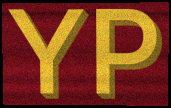
YP